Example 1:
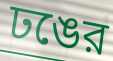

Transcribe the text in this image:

ঢঙের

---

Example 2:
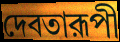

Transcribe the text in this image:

দেবতারূপী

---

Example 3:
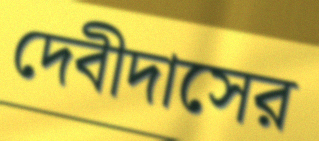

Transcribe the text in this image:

দেবীদাসের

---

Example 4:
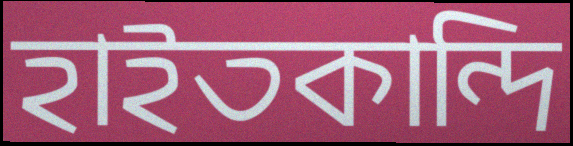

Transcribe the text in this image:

হাইতকান্দি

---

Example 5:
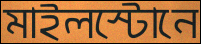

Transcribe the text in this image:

মাইলস্টোনে